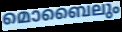
മൊബൈലും